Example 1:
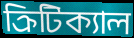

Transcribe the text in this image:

ক্রিটিক্যাল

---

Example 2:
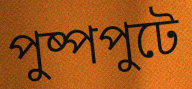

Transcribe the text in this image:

পুষ্পপুটে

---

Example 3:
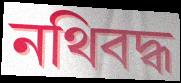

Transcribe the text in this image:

নথিবদ্ধ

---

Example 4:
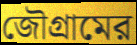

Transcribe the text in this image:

জৌগ্রামের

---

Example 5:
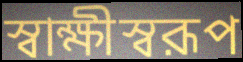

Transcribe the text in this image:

স্বাক্ষীস্বরূপ